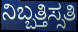
ನಿಬ್ಬತ್ತಿಸ್ಸತಿ